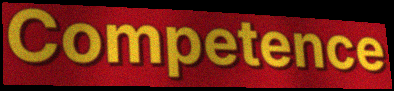
Competence